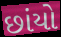
છાંયો